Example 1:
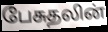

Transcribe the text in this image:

பேசுதலின்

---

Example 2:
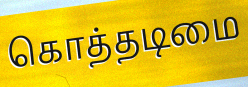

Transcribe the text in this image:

கொத்தடிமை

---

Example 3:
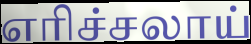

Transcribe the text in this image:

எரிச்சலாய்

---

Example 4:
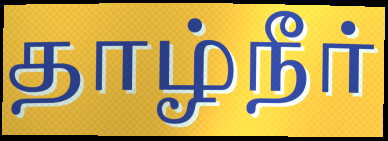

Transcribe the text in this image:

தாழ்நீர்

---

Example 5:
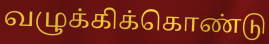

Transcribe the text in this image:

வழுக்கிக்கொண்டு